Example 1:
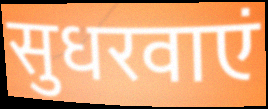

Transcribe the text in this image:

सुधरवाएं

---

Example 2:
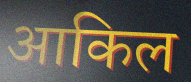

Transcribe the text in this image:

आकिल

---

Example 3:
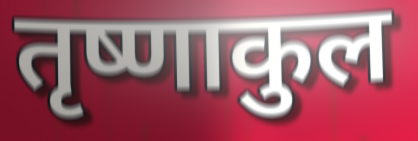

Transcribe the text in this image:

तृष्णाकुल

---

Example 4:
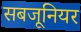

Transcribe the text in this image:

सबजूनियर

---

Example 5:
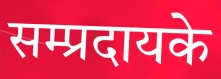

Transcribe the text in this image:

सम्प्रदायके